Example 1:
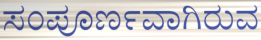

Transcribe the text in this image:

ಸಂಪೂರ್ಣವಾಗಿರುವ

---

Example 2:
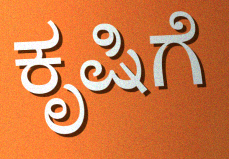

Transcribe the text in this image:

ಕೃಷಿಗೆ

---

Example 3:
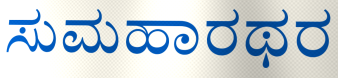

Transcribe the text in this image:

ಸುಮಹಾರಥರ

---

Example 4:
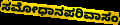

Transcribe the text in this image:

ಸಮೋಧಾನಪರಿವಾಸಂ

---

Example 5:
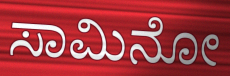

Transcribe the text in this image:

ಸಾಮಿನೋ